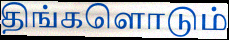
திங்களொடும்